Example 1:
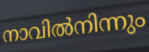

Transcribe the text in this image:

നാവിൽനിന്നും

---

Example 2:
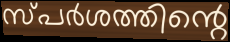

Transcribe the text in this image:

സ്പർശത്തിന്റെ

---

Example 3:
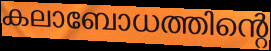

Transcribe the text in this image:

കലാബോധത്തിന്റെ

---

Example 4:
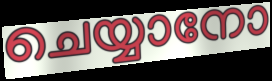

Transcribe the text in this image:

ചെയ്യാനോ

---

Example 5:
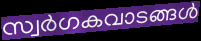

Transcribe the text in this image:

സ്വർഗകവാടങ്ങൾ